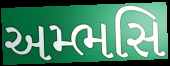
અમ્ભસિ